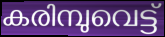
കരിമ്പുവെട്ട്